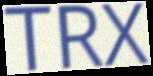
TRX